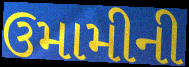
ઉમામીની